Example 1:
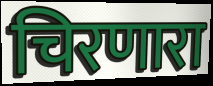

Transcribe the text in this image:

चिरणारा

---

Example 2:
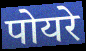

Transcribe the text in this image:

पोयरे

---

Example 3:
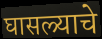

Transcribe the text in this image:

घासल्याचे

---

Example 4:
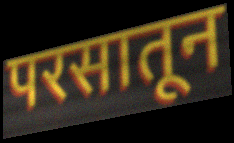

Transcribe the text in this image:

परसातून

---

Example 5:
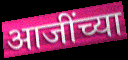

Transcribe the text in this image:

आजींच्या